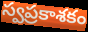
స్వప్రకాశకం